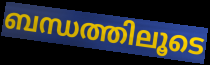
ബന്ധത്തിലൂടെ